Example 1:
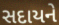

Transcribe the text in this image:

સદાયને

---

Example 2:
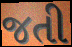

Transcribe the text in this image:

જતી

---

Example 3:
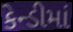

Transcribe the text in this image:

કેન્ડીમાં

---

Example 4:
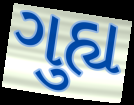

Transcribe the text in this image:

ગુહ્ય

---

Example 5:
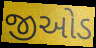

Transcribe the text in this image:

જીઓડ